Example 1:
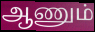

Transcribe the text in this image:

ஆணும்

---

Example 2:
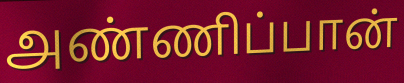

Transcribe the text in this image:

அண்ணிப்பான்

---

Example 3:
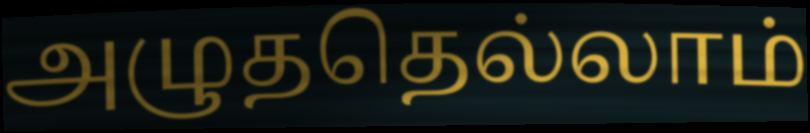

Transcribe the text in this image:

அழுததெல்லாம்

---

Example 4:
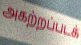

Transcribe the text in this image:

அகற்றப்படக்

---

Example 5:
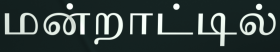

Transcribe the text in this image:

மன்றாட்டில்